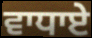
ਵਾਧਾਏ